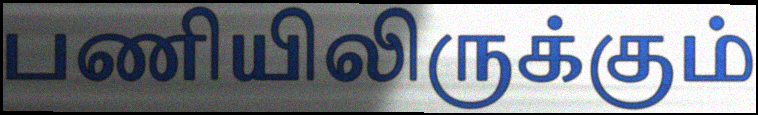
பணியிலிருக்கும்